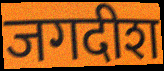
जगदीश